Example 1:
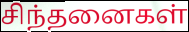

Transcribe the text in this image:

சிந்தனைகள்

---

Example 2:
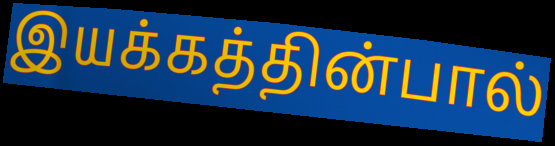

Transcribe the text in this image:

இயக்கத்தின்பால்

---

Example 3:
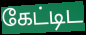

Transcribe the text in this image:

கேட்டிட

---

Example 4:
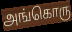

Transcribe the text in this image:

அங்கொரு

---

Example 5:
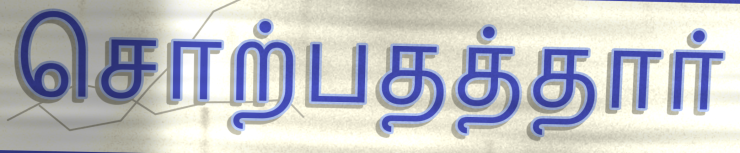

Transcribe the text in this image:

சொற்பதத்தார்